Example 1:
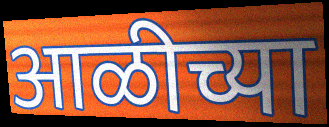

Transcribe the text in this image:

आळीच्या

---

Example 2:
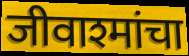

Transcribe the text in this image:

जीवाश्मांचा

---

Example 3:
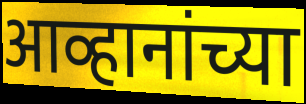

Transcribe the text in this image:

आव्हानांच्या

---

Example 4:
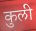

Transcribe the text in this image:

कुली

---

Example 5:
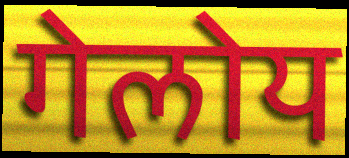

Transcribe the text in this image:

गेलोय